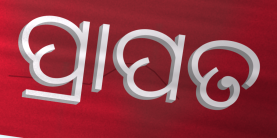
ପ୍ରାପତ